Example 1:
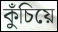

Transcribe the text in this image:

কুঁচিয়ে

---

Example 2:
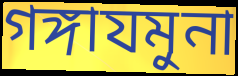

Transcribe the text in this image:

গঙ্গাযমুনা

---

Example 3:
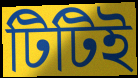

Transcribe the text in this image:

টিটিই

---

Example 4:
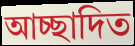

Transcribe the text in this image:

আচ্ছাদিত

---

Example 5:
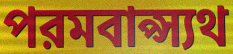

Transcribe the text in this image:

পরমবাপ্স্যথ